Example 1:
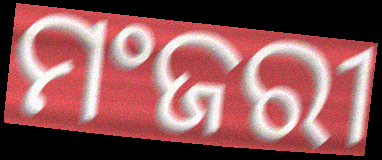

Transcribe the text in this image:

ମଂଜରୀ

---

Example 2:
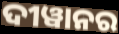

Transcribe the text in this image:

ଦୀୱାନର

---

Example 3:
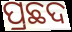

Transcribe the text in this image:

ପ୍ରଛଦ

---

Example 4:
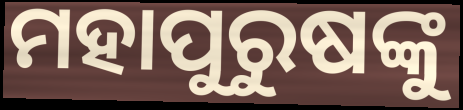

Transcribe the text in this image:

ମହାପୁରୁଷଙ୍କୁ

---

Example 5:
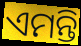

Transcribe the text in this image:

ଏମନ୍ତି